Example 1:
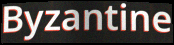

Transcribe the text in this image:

Byzantine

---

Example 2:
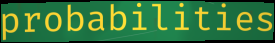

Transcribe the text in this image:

probabilities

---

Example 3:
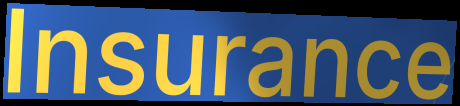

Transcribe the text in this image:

Insurance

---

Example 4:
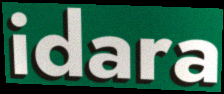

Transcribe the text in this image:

idara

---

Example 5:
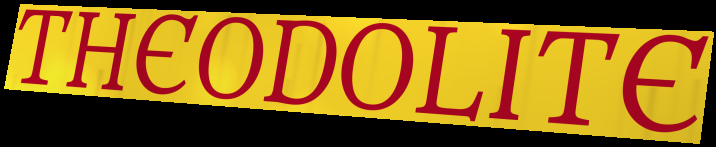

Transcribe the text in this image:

THEODOLITE